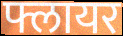
फ्लायर